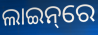
ଲାଇନ୍‌ରେ